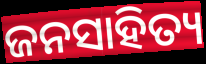
ଜନସାହିତ୍ୟ